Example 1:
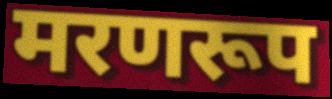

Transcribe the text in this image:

मरणरूप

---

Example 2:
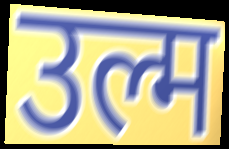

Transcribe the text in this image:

उल्म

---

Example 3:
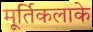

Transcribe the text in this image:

मूर्तिकलाके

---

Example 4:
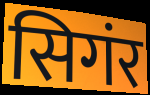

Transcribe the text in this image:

सिगंर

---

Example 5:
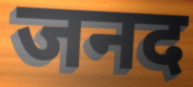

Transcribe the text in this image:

जनद